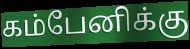
கம்பேனிக்கு